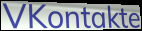
VKontakte